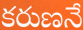
కరుణనే